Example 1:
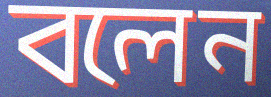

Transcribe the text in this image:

বলেন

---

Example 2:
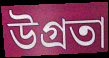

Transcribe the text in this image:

উগ্ৰতা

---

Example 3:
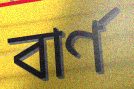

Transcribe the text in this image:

বাৰ্ণ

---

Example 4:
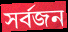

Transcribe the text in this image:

সৰ্বজন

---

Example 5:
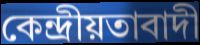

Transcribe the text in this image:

কেন্দ্ৰীয়তাবাদী